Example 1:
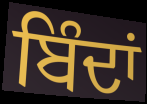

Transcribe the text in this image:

ਬਿੰਦਾਂ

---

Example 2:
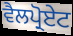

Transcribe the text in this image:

ਵੈਲਪ੍ਰੋਏਟ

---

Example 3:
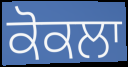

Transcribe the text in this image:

ਕੋਕਲਾ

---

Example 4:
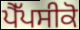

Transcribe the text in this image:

ਪੈੱਪਸੀਕੋ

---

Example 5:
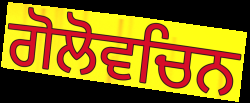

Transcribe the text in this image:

ਗੋਲੋਵਚਿਨ